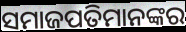
ସମାଜପତିମାନଙ୍କର